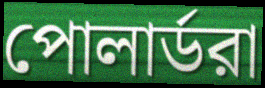
পোলার্ডরা